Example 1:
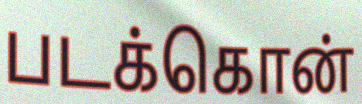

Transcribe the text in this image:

படக்கொன்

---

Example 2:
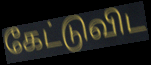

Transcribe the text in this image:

கேட்டுவிட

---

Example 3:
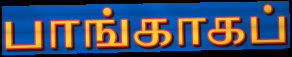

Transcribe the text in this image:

பாங்காகப்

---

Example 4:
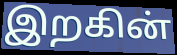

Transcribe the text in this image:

இறகின்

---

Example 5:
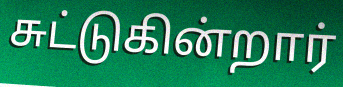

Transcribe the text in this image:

சுட்டுகின்றார்